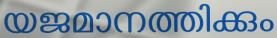
യജമാനത്തിക്കും